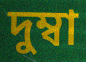
দুম্বা